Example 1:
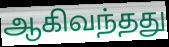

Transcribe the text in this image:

ஆகிவந்தது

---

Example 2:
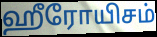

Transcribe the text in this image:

ஹீரோயிசம்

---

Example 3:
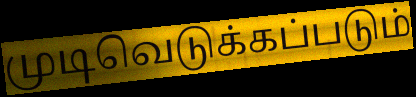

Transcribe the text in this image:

முடிவெடுக்கப்படும்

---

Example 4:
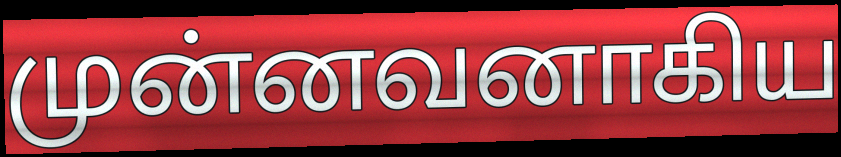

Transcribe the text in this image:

முன்னவனாகிய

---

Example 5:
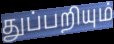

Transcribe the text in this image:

துப்பறியும்